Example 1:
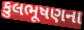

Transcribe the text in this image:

કુલભૂષણના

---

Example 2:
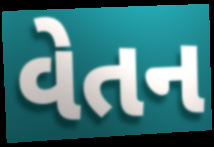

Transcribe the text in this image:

વેતન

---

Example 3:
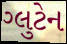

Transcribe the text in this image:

ગ્લુટેન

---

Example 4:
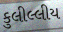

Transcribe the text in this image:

કુલીલ્લીય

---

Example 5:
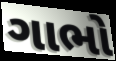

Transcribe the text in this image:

ગાભો